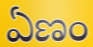
ఏణం